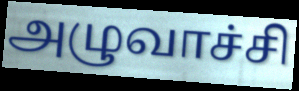
அழுவாச்சி